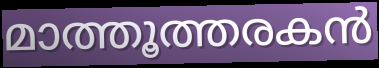
മാത്തൂത്തരകൻ